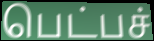
பெட்பச்